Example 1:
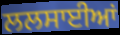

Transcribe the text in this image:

ਲਲਸਾਈਆਂ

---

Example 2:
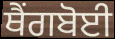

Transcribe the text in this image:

ਥੈਂਗਬੋਈ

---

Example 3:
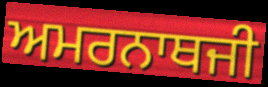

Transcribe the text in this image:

ਅਮਰਨਾਥਜੀ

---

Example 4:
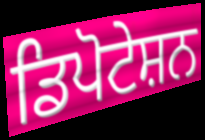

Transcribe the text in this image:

ਡਿਪੋਟੇਸ਼ਨ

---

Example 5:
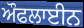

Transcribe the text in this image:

ਔਫਲਾਈਨ